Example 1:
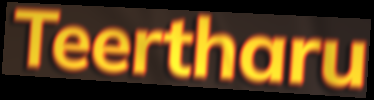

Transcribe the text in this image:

Teertharu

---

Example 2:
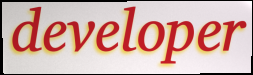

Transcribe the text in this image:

developer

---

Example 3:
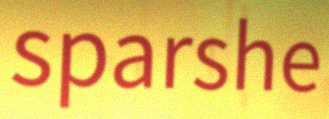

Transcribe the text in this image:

sparshe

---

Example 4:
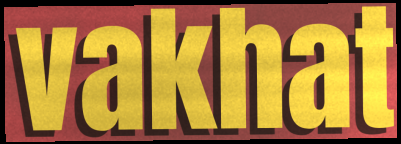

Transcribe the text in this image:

vakhat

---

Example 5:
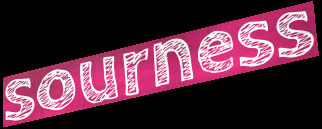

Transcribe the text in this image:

sourness